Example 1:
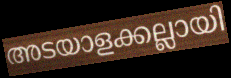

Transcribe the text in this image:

അടയാളക്കല്ലായി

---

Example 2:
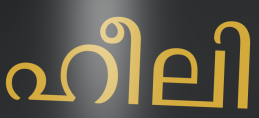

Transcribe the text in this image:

ഹീലി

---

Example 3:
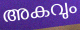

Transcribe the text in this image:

അകവും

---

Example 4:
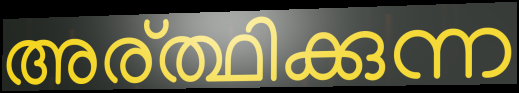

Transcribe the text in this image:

അര്ത്ഥിക്കുന്ന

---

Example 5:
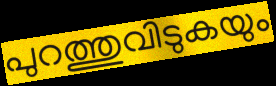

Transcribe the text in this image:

പുറത്തുവിടുകയും